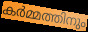
കർമ്മത്തിനും